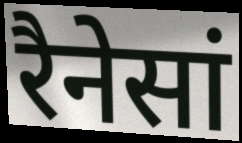
रैनेसां